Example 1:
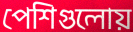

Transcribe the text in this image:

পেশিগুলোয়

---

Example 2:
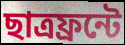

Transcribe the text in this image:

ছাত্রফ্রন্টে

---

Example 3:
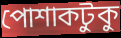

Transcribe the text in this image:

পোশাকটুকু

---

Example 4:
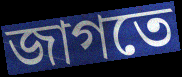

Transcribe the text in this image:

জাগতে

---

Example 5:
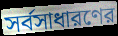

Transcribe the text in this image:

সর্বসাধারণের